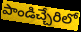
పాండిచ్చేరిలో